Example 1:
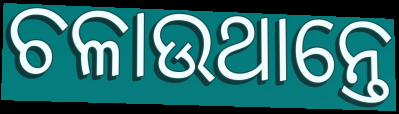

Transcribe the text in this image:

ଚଳାଉଥାନ୍ତେ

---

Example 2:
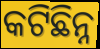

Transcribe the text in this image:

କଟିଛିନ୍ନ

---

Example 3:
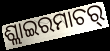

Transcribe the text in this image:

ଶ୍ଲାଇରମାଚର୍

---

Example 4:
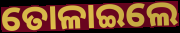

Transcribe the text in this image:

ତୋଳାଇଲେ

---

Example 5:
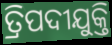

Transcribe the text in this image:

ତ୍ରିପଦୀଯୁକ୍ତି